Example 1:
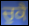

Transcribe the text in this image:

ਚੁਕੈ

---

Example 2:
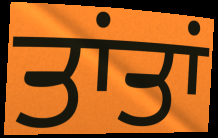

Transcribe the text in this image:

ਤਾਂਤਾਂ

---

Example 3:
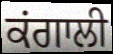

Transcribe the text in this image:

ਕਂਗਾਲੀ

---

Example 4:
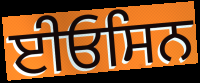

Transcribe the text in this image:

ਈਓਸਿਨ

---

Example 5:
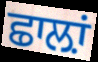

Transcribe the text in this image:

ਛਾਲ਼ਾਂ